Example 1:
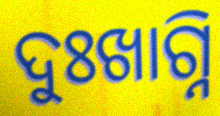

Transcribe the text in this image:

ଦୁଃଖାଗ୍ନି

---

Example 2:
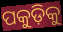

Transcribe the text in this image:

ପକୁଡ଼ିକୁ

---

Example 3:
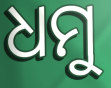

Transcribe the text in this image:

ଧମୁ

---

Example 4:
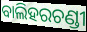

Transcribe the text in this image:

ବାଲିହରଚଣ୍ଡୀ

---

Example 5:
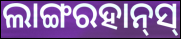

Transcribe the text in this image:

ଲାଙ୍ଗରହାନ୍‌ସ୍